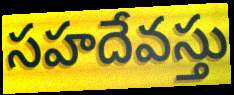
సహదేవస్తు